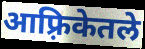
आफ़्रिकेतले